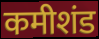
कमीशंड